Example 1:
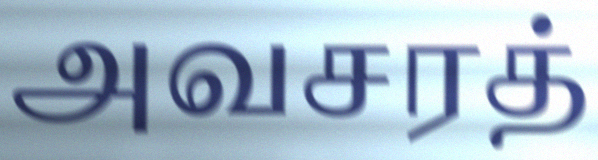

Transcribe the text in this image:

அவசரத்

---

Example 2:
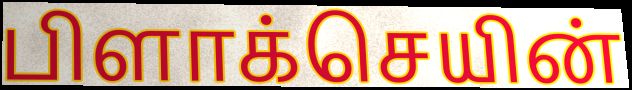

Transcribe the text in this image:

பிளாக்செயின்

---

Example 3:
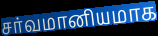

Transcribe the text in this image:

சர்வமானியமாக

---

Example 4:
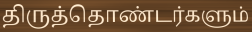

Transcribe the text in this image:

திருத்தொண்டர்களும்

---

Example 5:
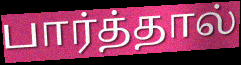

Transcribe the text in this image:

பார்த்தால்